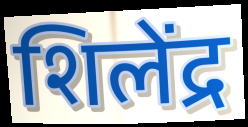
शिलेंद्र